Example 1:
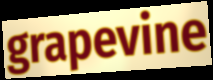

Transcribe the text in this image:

grapevine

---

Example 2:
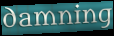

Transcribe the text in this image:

damning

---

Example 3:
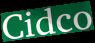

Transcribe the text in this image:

Cidco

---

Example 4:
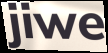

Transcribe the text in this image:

jiwe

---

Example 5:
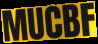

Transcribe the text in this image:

MUCBF